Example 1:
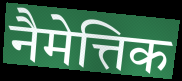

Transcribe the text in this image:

नैमेत्तिक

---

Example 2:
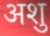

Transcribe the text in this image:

अशु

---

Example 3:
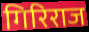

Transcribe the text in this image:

गिरिराज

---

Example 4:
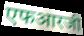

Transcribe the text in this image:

एफआरजी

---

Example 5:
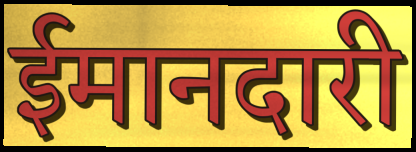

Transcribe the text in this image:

ईमानदारी